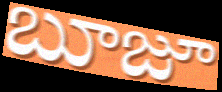
బూజూ